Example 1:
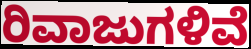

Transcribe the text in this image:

ರಿವಾಜುಗಳಿವೆ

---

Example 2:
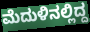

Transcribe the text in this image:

ಮೆದುಳಿನಲ್ಲಿದ್ದ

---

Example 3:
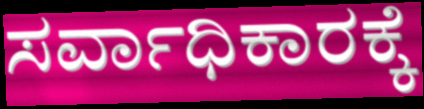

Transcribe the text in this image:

ಸರ್ವಾಧಿಕಾರಕ್ಕೆ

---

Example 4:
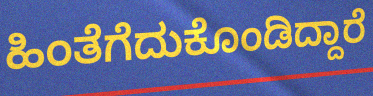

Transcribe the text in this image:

ಹಿಂತೆಗೆದುಕೊಂಡಿದ್ದಾರೆ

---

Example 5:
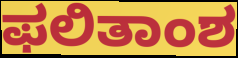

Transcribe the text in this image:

ಫಲಿತಾಂಶ